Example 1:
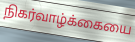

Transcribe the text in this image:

நிகர்வாழ்க்கையை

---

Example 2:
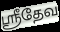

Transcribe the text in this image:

ஸ்ரீதேவ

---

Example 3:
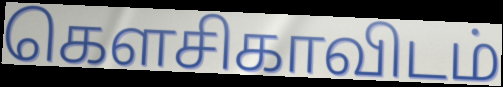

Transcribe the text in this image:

கௌசிகாவிடம்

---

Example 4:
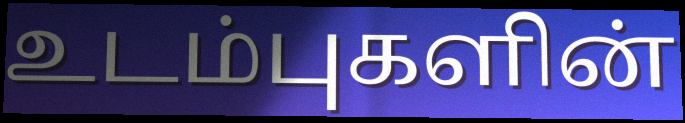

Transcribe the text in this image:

உடம்புகளின்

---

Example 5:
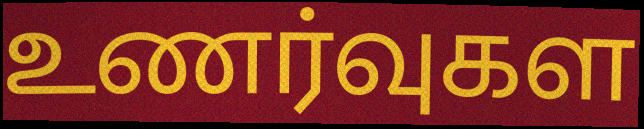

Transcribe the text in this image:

உணர்வுகள